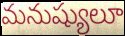
మనుష్యులూ